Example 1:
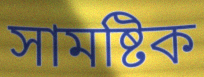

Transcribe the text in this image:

সামষ্টিক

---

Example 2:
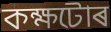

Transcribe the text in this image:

কক্ষটোৰ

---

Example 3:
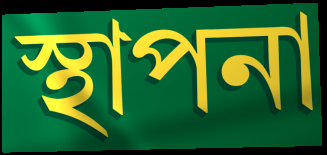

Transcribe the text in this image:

স্থাপনা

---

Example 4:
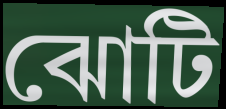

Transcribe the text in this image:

ঝোটি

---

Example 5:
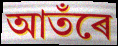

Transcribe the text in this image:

আতঁৰে